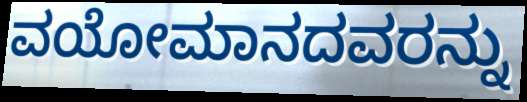
ವಯೋಮಾನದವರನ್ನು